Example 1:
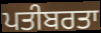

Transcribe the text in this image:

ਪਤੀਬਰਤਾ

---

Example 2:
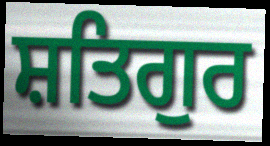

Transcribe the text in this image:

ਸ਼ਤਿਗੁਰ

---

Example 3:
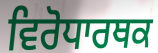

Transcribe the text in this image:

ਵਿਰੋਧਾਰਥਕ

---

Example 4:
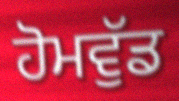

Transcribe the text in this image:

ਹੋਮਵੁੱਡ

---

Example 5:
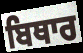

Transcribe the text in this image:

ਬਿਥਾਰ